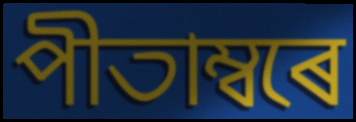
পীতাম্বৰে